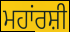
ਮਹਾਂਰਸ਼ੀ